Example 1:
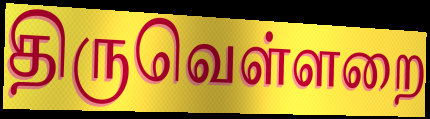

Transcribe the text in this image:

திருவெள்ளறை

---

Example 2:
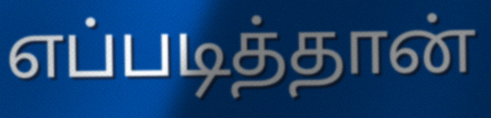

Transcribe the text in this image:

எப்படித்தான்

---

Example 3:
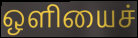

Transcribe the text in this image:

ஒளியைச்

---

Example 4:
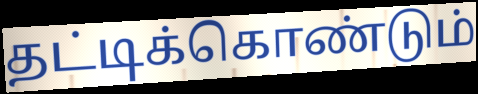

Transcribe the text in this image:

தட்டிக்கொண்டும்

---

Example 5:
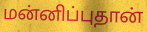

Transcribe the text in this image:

மன்னிப்புதான்